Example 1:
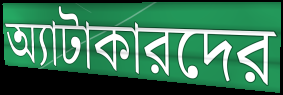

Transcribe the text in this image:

অ্যাটাকারদের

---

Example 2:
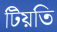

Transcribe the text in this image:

টিয়তি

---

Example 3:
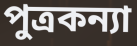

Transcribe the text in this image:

পুত্রকন্যা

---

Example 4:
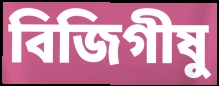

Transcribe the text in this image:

বিজিগীষু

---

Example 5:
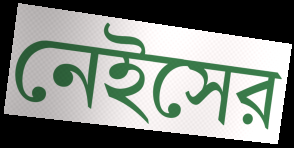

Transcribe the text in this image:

নেইসের